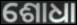
ଶୋଧା